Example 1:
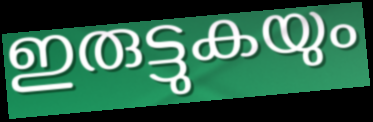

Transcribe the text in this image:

ഇരുട്ടുകയും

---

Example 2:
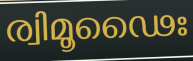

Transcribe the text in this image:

ര്വിമൂഢൈഃ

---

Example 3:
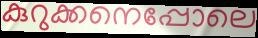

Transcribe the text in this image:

കുറുക്കനെപ്പോലെ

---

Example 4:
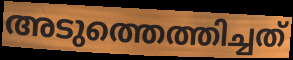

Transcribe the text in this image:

അടുത്തെത്തിച്ചത്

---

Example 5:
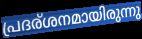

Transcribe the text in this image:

പ്രദര്ശനമായിരുന്നു